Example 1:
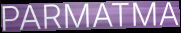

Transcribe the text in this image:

PARMATMA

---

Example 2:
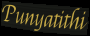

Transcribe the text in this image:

Punyatithi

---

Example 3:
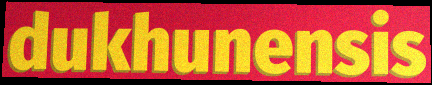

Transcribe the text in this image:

dukhunensis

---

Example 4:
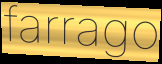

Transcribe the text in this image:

farrago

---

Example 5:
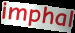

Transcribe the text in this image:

imphal